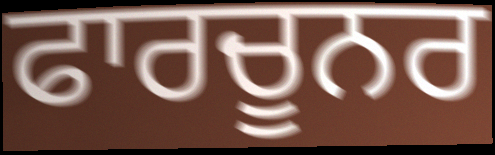
ਫਾਰਚੂਨਰ